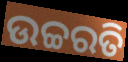
ଉଚ୍ଚରତି